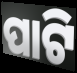
ପାଟି